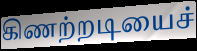
கிணற்றடியைச்